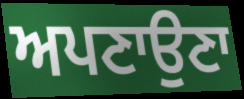
ਅਪਣਾਉਣਾ